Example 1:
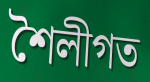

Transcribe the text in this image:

শৈলীগত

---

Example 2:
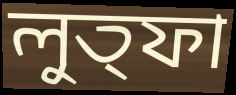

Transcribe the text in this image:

লুত্ফা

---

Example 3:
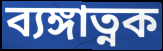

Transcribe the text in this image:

ব্যঙ্গাত্নক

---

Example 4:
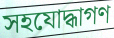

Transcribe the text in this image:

সহযোদ্ধাগণ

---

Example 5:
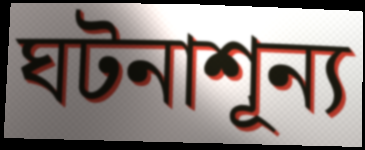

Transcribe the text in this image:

ঘটনাশূন্য